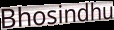
Bhosindhu